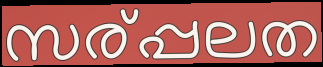
സര്പ്പലത